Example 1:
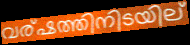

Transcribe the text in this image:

വര്ഷത്തിനിടയില്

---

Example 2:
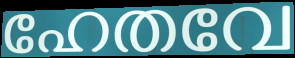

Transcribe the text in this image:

ഹേതവേ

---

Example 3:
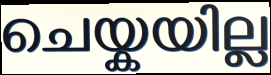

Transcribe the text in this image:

ചെയ്കയില്ല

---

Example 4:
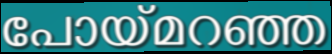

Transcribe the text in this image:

പോയ്മറഞ്ഞ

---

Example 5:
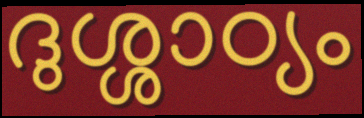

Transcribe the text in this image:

ദുശ്ശാഠ്യം